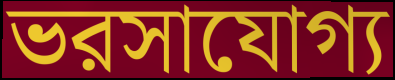
ভরসাযোগ্য